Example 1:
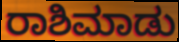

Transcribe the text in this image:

ರಾಶಿಮಾಡು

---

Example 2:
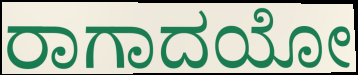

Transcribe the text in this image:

ರಾಗಾದಯೋ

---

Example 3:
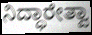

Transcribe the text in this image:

ನಿದ್ಧಾರೇತ್ವಾ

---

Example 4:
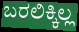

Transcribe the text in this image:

ಬರಲಿಕ್ಕಿಲ್ಲ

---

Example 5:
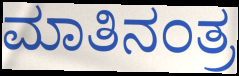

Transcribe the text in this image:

ಮಾತಿನಂತ್ರ